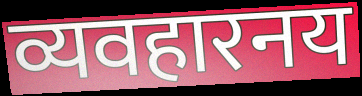
व्यवहारनय